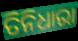
ତିନିଧାରା